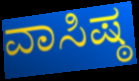
ವಾಸಿಷ್ಠ